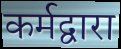
कर्मद्वारा